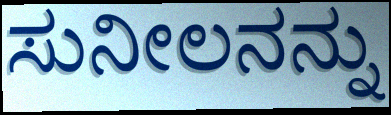
ಸುನೀಲನನ್ನು